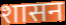
शासन